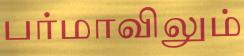
பர்மாவிலும்